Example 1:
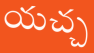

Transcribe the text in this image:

యచ్చ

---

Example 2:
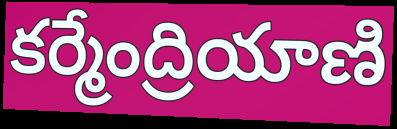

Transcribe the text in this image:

కర్మేంద్రియాణి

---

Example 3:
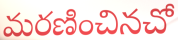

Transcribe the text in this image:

మరణించినచో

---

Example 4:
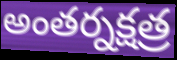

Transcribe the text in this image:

అంతర్నక్షత్ర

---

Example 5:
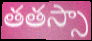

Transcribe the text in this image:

తతస్సా